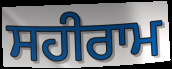
ਸਹੀਰਾਮ